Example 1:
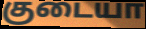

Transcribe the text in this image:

குடையா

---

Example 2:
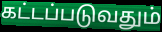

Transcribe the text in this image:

கட்டப்படுவதும்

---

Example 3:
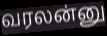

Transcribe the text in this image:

வரலன்னு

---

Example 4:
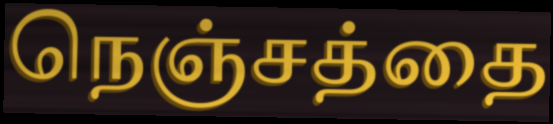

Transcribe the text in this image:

நெஞ்சத்தை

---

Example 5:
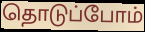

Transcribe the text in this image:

தொடுப்போம்